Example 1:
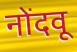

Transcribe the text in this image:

नोंदवू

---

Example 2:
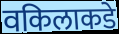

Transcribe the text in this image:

वकिलाकडे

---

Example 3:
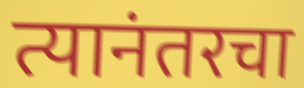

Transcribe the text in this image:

त्यानंतरचा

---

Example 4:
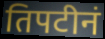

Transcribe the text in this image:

तिपटीनं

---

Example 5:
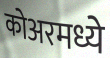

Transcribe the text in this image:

कोअरमध्ये